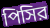
পিসির